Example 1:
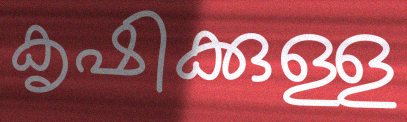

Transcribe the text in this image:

കൃഷിക്കുള്ള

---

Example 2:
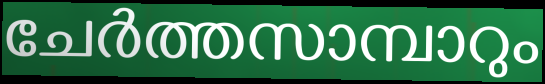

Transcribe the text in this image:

ചേർത്തസാമ്പാറും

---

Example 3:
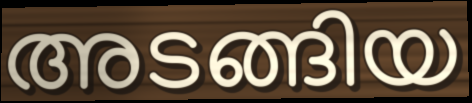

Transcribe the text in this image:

അടങ്ങിയ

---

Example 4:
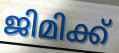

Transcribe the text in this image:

ജിമിക്ക്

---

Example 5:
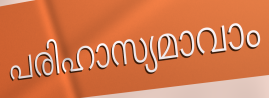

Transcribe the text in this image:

പരിഹാസ്യമാവാം